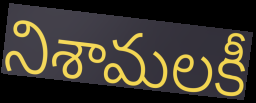
నిశామలకీ